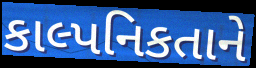
કાલ્પનિકતાને